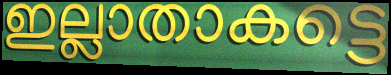
ഇല്ലാതാകട്ടെ